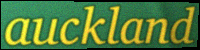
auckland